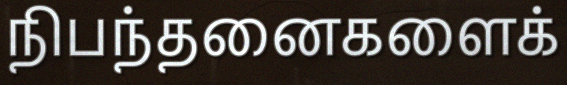
நிபந்தனைகளைக்